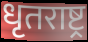
धृतराष्ट्र